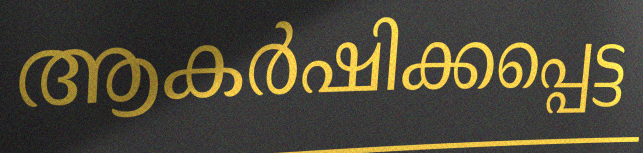
ആകർഷിക്കപ്പെട്ട